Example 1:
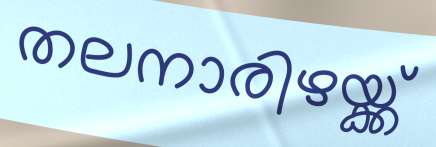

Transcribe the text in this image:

തലനാരിഴയ്ക്ക്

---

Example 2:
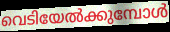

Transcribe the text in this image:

വെടിയേൽക്കുമ്പോൾ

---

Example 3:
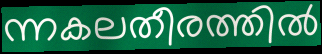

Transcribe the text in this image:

ന്നകലതീരത്തിൽ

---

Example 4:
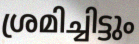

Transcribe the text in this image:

ശ്രമിച്ചിട്ടും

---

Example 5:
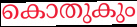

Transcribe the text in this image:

കൊതുകും